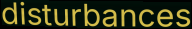
disturbances